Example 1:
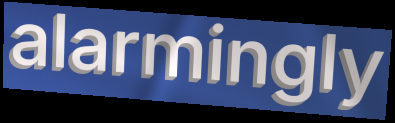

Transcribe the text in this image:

alarmingly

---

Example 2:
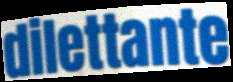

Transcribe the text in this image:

dilettante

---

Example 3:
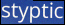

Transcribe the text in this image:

styptic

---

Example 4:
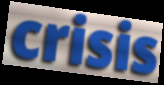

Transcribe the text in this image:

crisis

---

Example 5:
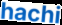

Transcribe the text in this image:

hachi